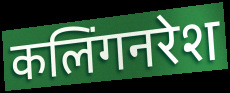
कलिंगनरेश